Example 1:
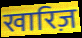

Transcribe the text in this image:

खारिज़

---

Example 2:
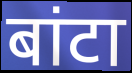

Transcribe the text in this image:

बांटा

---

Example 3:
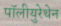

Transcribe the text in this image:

पॉलीयुरेथेन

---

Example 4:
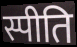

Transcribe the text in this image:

स्पीति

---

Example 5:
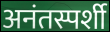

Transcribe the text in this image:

अनंतस्पर्शी